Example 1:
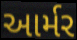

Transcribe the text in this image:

આર્મર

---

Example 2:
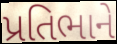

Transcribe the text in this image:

પ્રતિભાને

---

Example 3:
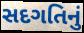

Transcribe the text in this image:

સદગતિનું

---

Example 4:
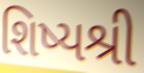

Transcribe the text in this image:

શિષ્યશ્રી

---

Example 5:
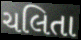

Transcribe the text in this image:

ચલિતા